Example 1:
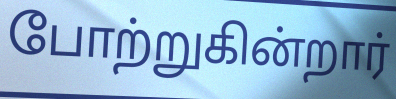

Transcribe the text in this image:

போற்றுகின்றார்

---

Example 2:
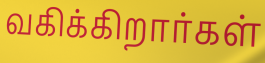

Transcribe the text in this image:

வகிக்கிறார்கள்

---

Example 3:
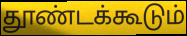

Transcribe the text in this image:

தூண்டக்கூடும்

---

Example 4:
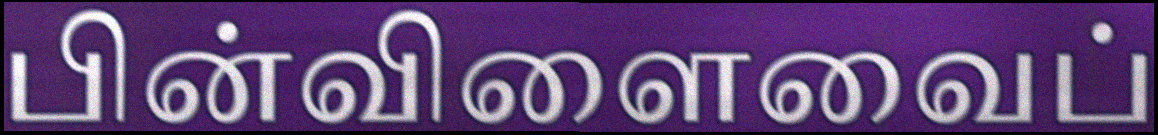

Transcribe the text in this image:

பின்விளைவைப்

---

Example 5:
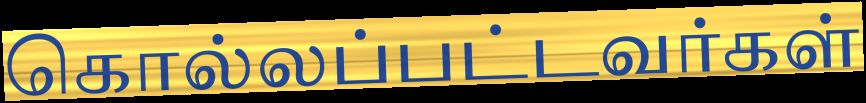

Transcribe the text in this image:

கொல்லப்பட்டவர்கள்